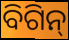
ବିଗିନ୍